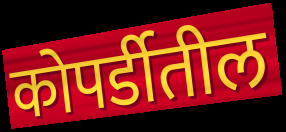
कोपर्डीतील